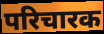
परिचारक